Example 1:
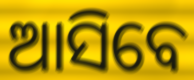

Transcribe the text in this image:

ଆସିବେ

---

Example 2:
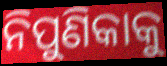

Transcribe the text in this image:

ନିପୁଣିକାକୁ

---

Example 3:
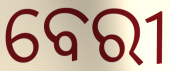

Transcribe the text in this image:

ବେରୀ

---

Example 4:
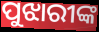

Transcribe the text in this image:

ପୁଝାରୀଙ୍କ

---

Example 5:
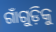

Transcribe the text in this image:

ଗାଁଗୁଡ଼ିକୁ